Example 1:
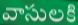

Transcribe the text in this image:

వాసులకి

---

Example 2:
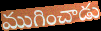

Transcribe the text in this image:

ముగించాడు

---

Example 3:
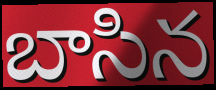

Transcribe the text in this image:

బాసిన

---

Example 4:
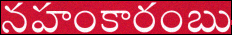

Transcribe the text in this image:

నహంకారంబు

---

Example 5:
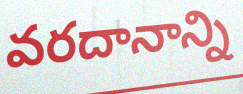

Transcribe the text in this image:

వరదానాన్ని